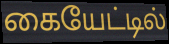
கையேட்டில்